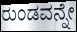
ರುಂಡವನ್ನೇ